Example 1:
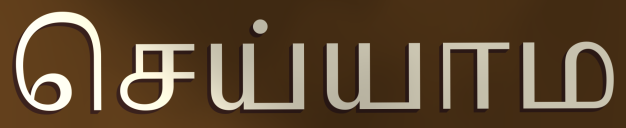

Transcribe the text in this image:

செய்யாம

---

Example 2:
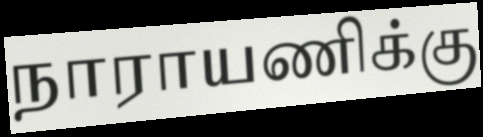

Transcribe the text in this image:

நாராயணிக்கு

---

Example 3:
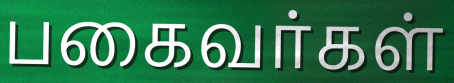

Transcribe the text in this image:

பகைவர்கள்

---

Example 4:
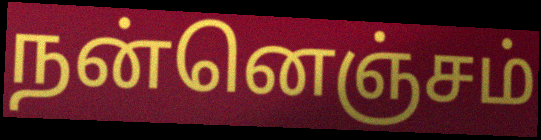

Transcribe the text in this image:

நன்னெஞ்சம்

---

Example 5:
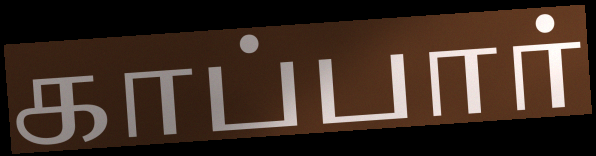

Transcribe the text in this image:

காப்பார்